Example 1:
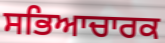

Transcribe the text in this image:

ਸਭਿਆਚਾਰਕ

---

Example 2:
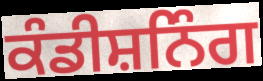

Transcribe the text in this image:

ਕੰਡੀਸ਼ਨਿੰਗ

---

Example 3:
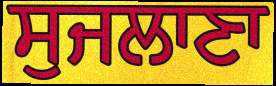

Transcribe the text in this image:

ਸੁਜਲਾਣਾ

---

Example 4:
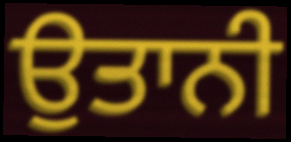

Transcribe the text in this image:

ਉਤਾਨੀ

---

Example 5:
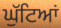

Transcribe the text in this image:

ਘੁੱਟਿਆਂ